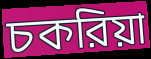
চকরিয়া